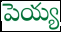
పెయ్య